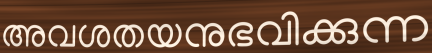
അവശതയനുഭവിക്കുന്ന